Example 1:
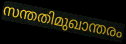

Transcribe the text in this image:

സന്തതിമുഖാന്തരം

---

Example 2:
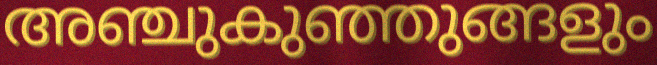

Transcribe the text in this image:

അഞ്ചുകുഞ്ഞുങ്ങളും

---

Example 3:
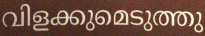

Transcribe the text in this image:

വിളക്കുമെടുത്തു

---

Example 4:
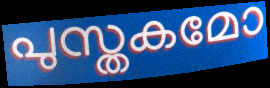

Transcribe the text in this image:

പുസ്തകമോ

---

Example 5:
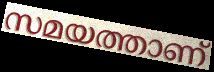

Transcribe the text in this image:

സമയത്താണ്